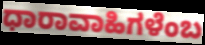
ಧಾರಾವಾಹಿಗಳೆಂಬ